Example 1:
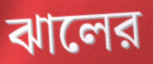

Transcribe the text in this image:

ঝালের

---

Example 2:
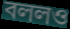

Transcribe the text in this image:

বললও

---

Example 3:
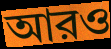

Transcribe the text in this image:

আরও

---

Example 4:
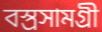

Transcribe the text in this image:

বস্ত্রসামগ্রী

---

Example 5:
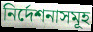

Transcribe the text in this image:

নির্দেশনাসমূহ